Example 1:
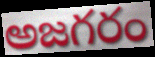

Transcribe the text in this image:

అజగరం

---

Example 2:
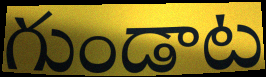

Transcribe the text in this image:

గుండాట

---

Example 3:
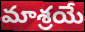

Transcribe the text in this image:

మాశ్రయే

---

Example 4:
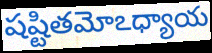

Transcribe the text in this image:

షష్టితమోఽధ్యాయ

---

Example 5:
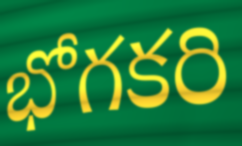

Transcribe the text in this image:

భోగకరి